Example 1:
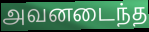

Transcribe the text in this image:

அவனடைந்த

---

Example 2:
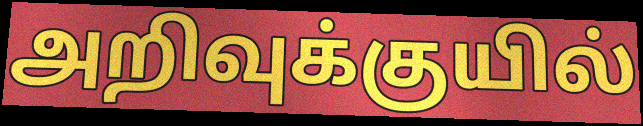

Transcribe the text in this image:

அறிவுக்குயில்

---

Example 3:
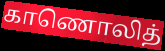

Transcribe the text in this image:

காணொலித்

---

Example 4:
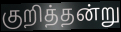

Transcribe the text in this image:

குறித்தன்று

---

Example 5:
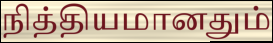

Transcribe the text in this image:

நித்தியமானதும்